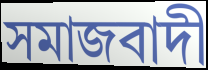
সমাজবাদী